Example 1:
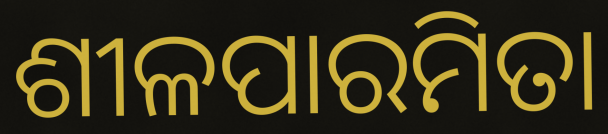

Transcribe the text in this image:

ଶୀଳପାରମିତା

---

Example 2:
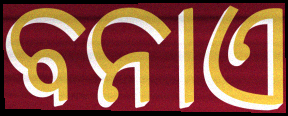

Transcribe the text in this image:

ବନାଏ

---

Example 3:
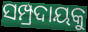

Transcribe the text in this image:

ସମ୍ପ୍ରଦାୟକୁ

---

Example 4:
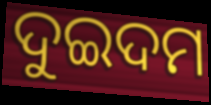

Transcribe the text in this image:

ଦୁଇଦମ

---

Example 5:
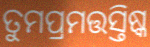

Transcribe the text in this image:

ତୁମପ୍ରମତ୍ତସ୍ତିଷ୍କ